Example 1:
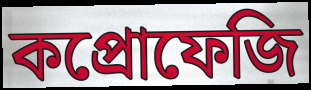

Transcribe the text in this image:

কপ্রোফেজি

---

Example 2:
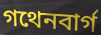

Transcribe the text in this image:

গথেনবার্গ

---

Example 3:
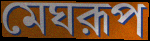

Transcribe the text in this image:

মেঘরূপ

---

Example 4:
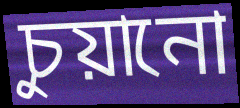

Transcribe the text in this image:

চুয়ানো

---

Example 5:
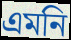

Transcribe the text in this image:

এমনি